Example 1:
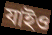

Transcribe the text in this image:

যাইও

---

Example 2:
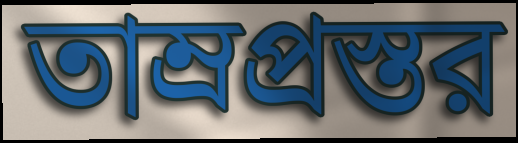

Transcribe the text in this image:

তাম্রপ্রস্তর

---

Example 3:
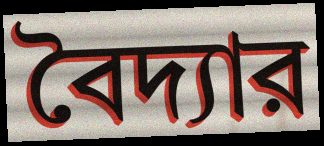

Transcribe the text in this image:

বৈদ্যার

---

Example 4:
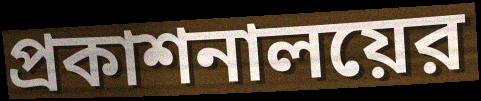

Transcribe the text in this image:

প্রকাশনালয়ের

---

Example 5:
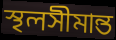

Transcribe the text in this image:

স্থলসীমান্ত